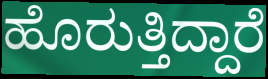
ಹೊರುತ್ತಿದ್ದಾರೆ